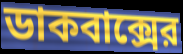
ডাকবাক্সের